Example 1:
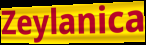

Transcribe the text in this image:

Zeylanica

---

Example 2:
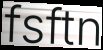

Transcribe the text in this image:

fsftn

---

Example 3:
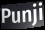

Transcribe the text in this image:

Punji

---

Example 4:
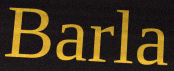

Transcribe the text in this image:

Barla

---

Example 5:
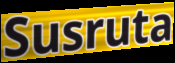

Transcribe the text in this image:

Susruta